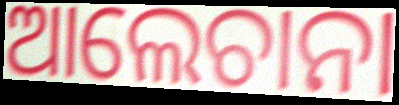
ଆଲେଚାନା